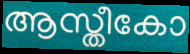
ആസ്തീകോ